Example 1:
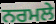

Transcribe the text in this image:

ਨਰਮਲੇ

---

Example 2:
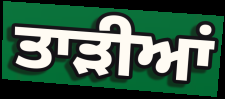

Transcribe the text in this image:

ਤਾੜੀਆਂ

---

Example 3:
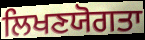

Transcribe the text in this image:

ਲਿਖਣਯੋਗਤਾ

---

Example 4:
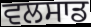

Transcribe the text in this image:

ਵਲਸਾਡ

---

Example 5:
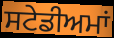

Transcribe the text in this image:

ਸਟੇਡੀਅਮਾਂ